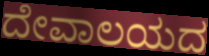
ದೇವಾಲಯದ